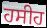
ਹਸੀਹ